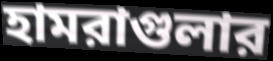
হামরাগুলার